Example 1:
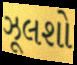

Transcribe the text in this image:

ઝૂલશો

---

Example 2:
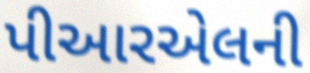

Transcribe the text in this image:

પીઆરએલની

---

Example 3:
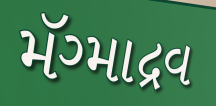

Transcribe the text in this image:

મૅગ્માદ્રવ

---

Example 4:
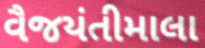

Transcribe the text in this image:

વૈજયંતીમાલા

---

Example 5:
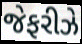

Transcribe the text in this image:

જેફરીઝે